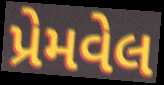
પ્રેમવેલ